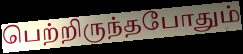
பெற்றிருந்தபோதும்